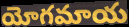
యోగమాయ